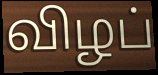
விழப்